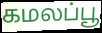
கமலப்பூ